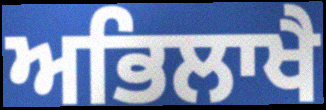
ਅਭਿਲਾਖੈ